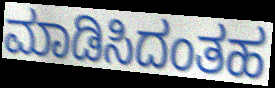
ಮಾಡಿಸಿದಂತಹ